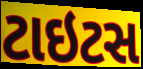
ટાઇટસ